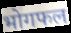
भोगफल